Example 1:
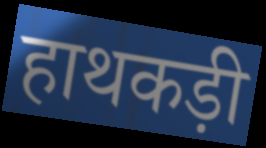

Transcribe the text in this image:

हाथकड़ी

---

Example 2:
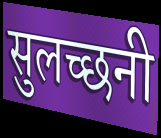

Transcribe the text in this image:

सुलच्छनी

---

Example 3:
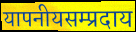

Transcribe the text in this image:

यापनीयसम्प्रदाय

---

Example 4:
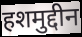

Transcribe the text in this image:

हशमुद्दीन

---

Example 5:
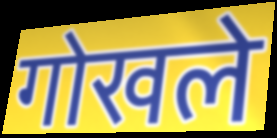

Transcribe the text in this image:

गोखले